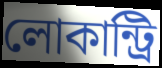
লোকান্ট্রি